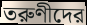
তরুণীদের